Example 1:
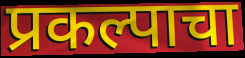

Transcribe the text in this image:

प्रकल्पाचा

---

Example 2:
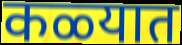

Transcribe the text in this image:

कळ्यात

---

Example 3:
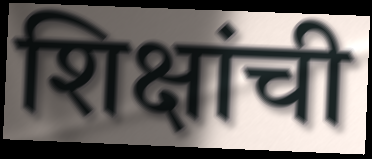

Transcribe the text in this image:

शिक्षांची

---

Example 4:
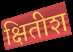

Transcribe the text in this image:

क्षितीश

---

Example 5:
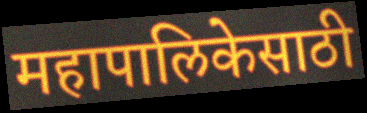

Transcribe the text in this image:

महापालिकेसाठी